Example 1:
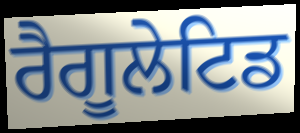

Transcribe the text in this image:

ਰੈਗੂਲੇਟਿਡ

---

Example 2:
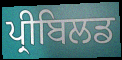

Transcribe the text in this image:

ਪ੍ਰੀਬਿਲਡ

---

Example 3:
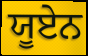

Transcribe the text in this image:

ਯੂਏਨ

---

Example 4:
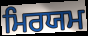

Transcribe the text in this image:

ਮਿਰਯਮ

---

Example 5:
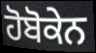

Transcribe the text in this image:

ਹੋਬੋਕੇਨ